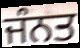
ਜੰਨਤ